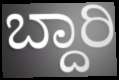
ಬ್ದಾರಿ